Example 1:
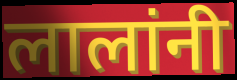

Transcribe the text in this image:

लालांनी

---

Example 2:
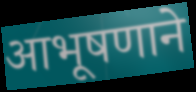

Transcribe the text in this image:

आभूषणाने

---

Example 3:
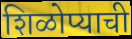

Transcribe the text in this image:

शिळोप्याची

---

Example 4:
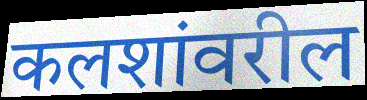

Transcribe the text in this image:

कलशांवरील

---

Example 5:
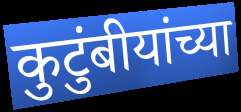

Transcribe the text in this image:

कुटुंबीयांच्या